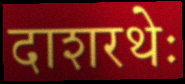
दाशरथेः